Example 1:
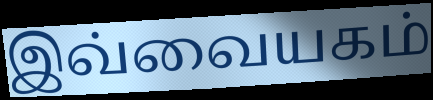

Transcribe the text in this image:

இவ்வையகம்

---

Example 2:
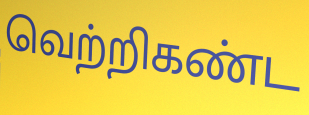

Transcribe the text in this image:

வெற்றிகண்ட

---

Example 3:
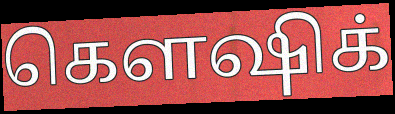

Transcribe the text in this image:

கௌஷிக்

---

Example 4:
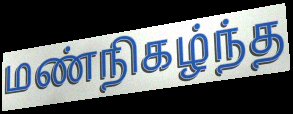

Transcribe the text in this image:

மண்நிகழ்ந்த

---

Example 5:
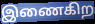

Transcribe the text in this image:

இணைகிற